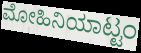
ಮೋಹಿನಿಯಾಟ್ಟಂ